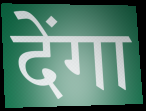
देंगा